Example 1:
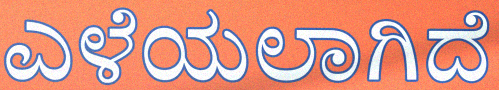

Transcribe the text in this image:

ಎಳೆಯಲಾಗಿದೆ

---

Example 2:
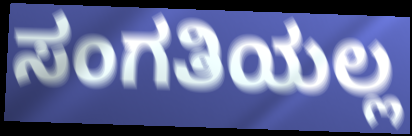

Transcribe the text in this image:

ಸಂಗತಿಯಲ್ಲ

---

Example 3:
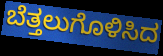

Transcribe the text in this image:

ಬೆತ್ತಲುಗೊಳಿಸಿದ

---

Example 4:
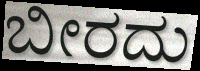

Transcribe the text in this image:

ಬೀರದು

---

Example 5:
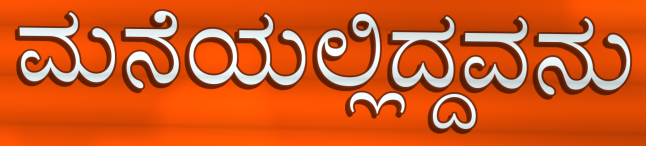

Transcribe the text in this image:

ಮನೆಯಲ್ಲಿದ್ದವನು